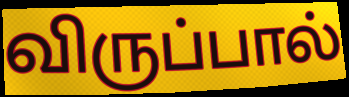
விருப்பால்